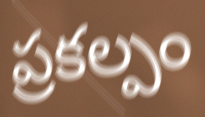
ప్రకల్పం